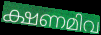
ക്ഷണമിവ